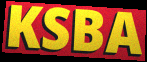
KSBA